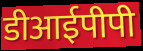
डीआईपीपी